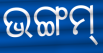
ଭଙ୍ଗମ୍